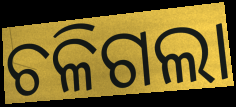
ଚଳିଗଲା